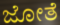
ಜೋತೆ